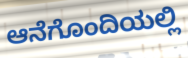
ಆನೆಗೊಂದಿಯಲ್ಲಿ